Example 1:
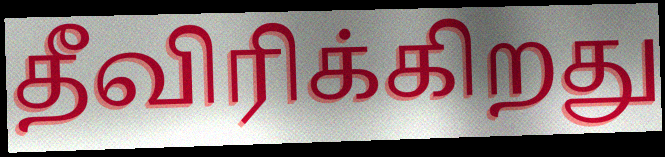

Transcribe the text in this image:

தீவிரிக்கிறது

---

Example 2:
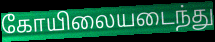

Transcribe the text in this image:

கோயிலையடைந்து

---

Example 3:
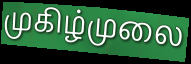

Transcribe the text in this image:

முகிழ்முலை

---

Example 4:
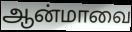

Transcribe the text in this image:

ஆன்மாவை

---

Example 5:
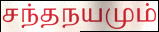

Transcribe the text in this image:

சந்தநயமும்